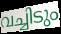
വച്ചിടും